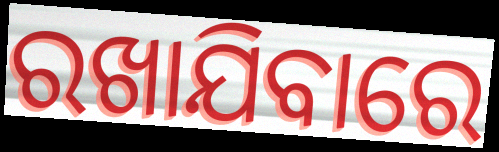
ରଖାଯିବାରେ